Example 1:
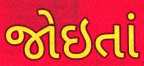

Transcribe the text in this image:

જોઇતાં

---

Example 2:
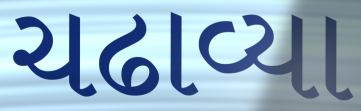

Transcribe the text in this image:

ચઢાવ્યા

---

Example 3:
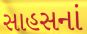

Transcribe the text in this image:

સાહસનાં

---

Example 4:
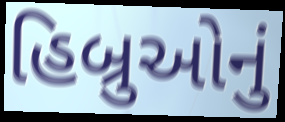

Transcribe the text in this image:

હિબ્રુઓનું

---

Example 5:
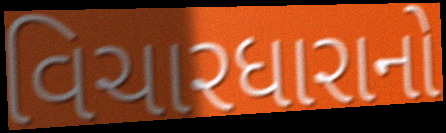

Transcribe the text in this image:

વિચારધારાનો